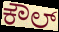
ಕೌಲ್